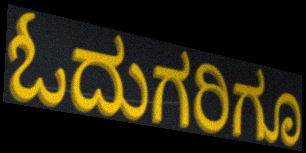
ಓದುಗರಿಗೂ